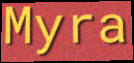
Myra